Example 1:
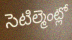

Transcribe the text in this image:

సెటిల్మెంట్లో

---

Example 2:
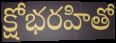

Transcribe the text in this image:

క్షోభరహితో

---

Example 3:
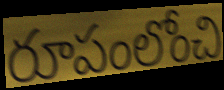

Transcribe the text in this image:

రూపంలోంచి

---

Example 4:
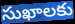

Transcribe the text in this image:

సుఖాలకు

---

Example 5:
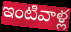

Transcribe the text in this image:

ఇంటివాళ్ల